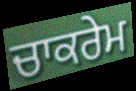
ਚਾਕਰੇਮ